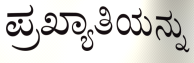
ಪ್ರಖ್ಯಾತಿಯನ್ನು